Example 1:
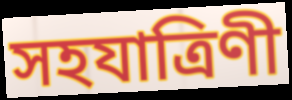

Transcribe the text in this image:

সহযাত্রিণী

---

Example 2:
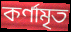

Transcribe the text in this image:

কর্ণামৃত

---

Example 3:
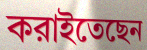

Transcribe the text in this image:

করাইতেছেন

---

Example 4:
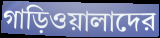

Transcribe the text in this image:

গাড়িওয়ালাদের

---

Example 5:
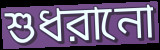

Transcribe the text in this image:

শুধরানো